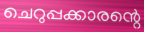
ചെറുപ്പക്കാരന്റെ